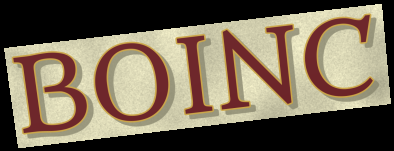
BOINC